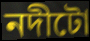
নদীটো